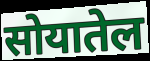
सोयातेल